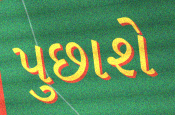
પુછાશે